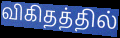
விகிதத்தில்